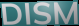
DISM